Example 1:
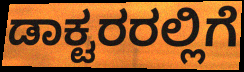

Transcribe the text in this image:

ಡಾಕ್ಟರರಲ್ಲಿಗೆ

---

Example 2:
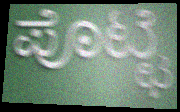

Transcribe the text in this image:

ಪೊಟ್ಟೆ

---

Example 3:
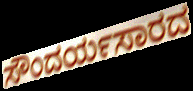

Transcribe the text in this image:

ಸೌಂದರ್ಯಸಾರದ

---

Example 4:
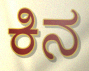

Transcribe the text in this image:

ಕಿನ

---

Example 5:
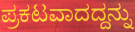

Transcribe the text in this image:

ಪ್ರಕಟವಾದದ್ದನ್ನು